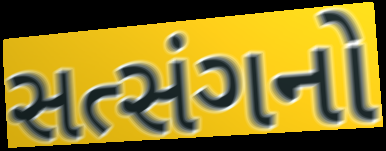
સત્સંગનો